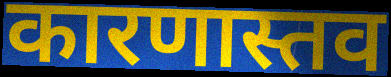
कारणास्तव